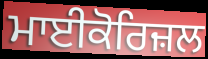
ਮਾਈਕੋਰਿਜ਼ਲ